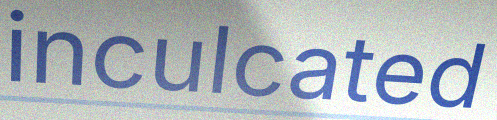
inculcated